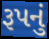
રૂપનું